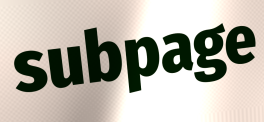
subpage